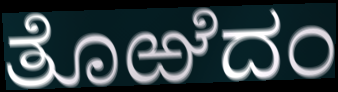
ತೊಱೆದಂ